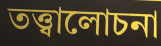
তত্ত্বালোচনা